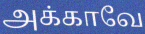
அக்காவே